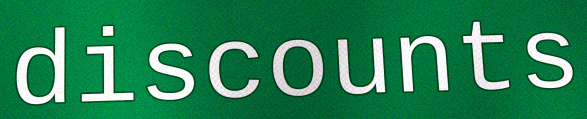
discounts